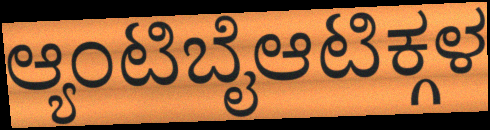
ಆ್ಯಂಟಿಬೈಆಟಿಕ್ಗಳ